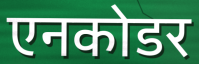
एनकोडर